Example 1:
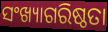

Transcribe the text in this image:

ସଂଖ୍ୟାଗରିଷ୍ଠତା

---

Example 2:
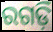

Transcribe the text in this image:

ରଗଡ଼ି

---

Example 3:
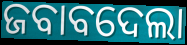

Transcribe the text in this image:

ଜବାବଦେଲା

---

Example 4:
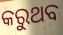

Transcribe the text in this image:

କରୁଥବ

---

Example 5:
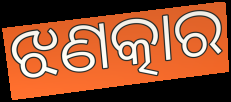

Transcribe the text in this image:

ଝଣତ୍କାର